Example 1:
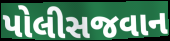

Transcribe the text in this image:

પોલીસજવાન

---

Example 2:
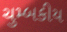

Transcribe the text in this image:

ચુમ્બકીય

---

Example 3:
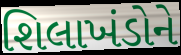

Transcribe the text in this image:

શિલાખંડોને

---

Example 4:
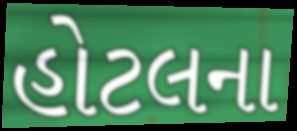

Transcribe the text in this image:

હોટલના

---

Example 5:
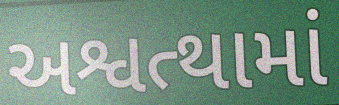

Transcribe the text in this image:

અશ્વત્થામાં